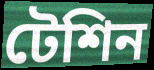
টেশিন